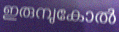
ഇരുമ്പുകോൽ